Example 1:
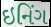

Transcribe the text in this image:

ઇનિંગ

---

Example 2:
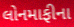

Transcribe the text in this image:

લોનમાફીના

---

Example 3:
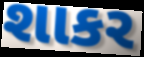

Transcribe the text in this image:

શાકર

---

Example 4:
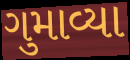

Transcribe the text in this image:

ગુમાવ્યા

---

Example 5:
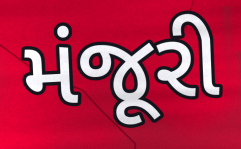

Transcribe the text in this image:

મંજૂરી